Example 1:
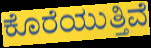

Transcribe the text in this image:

ಕೊರೆಯುತ್ತಿವೆ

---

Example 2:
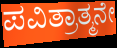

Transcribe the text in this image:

ಪವಿತ್ರಾತ್ಮನೇ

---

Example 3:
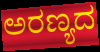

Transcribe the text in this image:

ಅರಣ್ಯದ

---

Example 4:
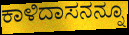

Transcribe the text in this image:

ಕಾಳಿದಾಸನನ್ನೂ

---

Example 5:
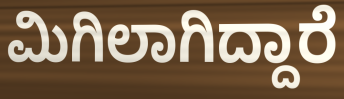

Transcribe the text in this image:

ಮಿಗಿಲಾಗಿದ್ದಾರೆ